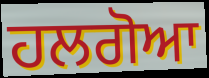
ਹਲਗੋਆ